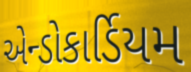
એન્ડોકાર્ડિયમ